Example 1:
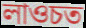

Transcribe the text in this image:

লাওচত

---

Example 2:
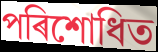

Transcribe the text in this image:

পৰিশোধিত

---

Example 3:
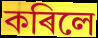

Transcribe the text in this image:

কৰিলে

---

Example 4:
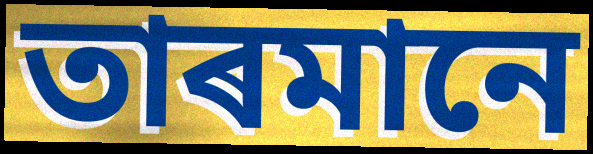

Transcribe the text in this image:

তাৰমানে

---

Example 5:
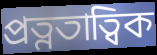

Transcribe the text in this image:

প্ৰত্নতাত্বিক